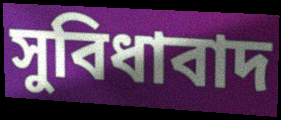
সুবিধাবাদ